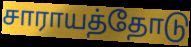
சாராயத்தோடு